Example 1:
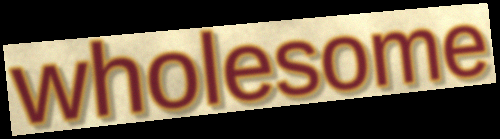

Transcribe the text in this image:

wholesome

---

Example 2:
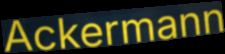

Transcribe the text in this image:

Ackermann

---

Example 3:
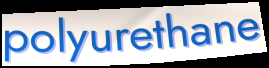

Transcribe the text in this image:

polyurethane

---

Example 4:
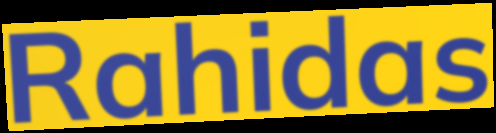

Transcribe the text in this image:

Rahidas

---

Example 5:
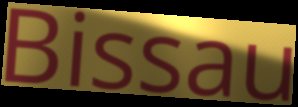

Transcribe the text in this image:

Bissau